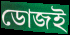
ডোজই